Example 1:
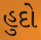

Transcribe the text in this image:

હુદો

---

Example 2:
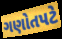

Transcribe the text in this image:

ગણોતપટે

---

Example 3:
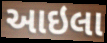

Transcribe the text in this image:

આઇલા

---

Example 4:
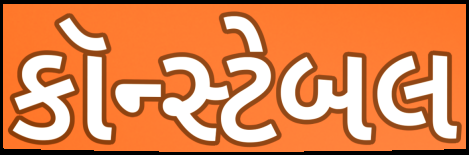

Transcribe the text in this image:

કૉન્સ્ટેબલ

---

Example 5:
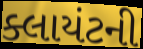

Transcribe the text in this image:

ક્લાયંટની